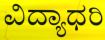
ವಿದ್ಯಾಧರಿ